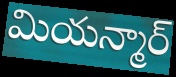
మియన్మార్